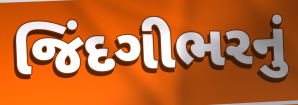
જિંદગીભરનું